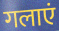
गलाएं